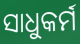
ସାଧୁକର୍ମ